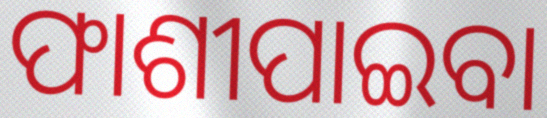
ଫାଶୀପାଇବା